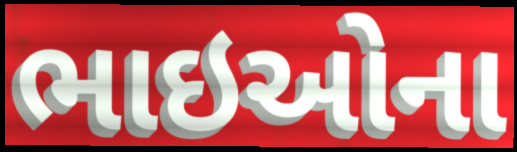
ભાઇઓના